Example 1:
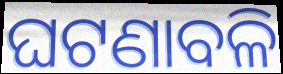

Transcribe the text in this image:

ଘଟଣାବଳି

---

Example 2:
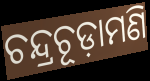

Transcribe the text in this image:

ଚନ୍ଦ୍ରଚୂଡ଼ାମଣି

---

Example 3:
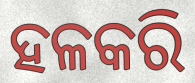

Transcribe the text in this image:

ହଳକରି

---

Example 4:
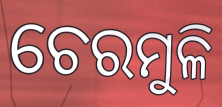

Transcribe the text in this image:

ଚେରମୁଳି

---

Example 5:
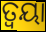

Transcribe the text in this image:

ତ୍ୱୟା